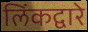
लिंकद्वारे